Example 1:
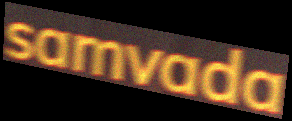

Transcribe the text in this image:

samvada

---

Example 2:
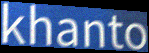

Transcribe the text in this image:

khanto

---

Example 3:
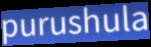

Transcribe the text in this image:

purushula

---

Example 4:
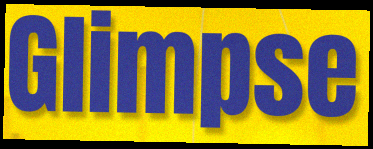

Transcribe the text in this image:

Glimpse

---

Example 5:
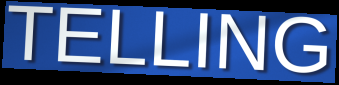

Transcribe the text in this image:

TELLING